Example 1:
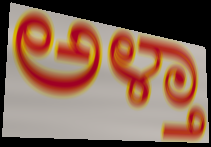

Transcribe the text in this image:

ಅಳ್ತಾ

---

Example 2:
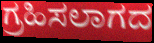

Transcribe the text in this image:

ಗ್ರಹಿಸಲಾಗದ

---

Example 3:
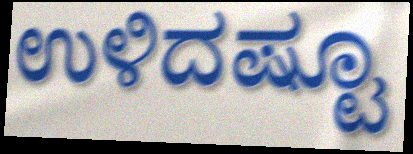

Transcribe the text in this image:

ಉಳಿದಷ್ಟೂ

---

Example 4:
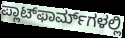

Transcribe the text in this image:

ಪ್ಲಾಟ್‌ಫಾರ್ಮ್‌ಗಳಲ್ಲಿ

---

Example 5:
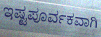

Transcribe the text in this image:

ಇಷ್ಟಪೂರ್ವಕವಾಗಿ